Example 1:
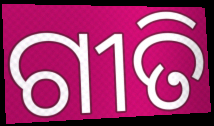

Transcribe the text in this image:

ଗୀତି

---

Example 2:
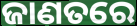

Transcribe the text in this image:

ଜାଣତରେ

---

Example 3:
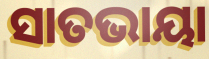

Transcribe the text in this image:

ସାତଭାୟା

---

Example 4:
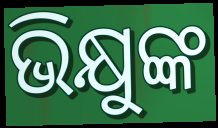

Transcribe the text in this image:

ଭିକ୍ଷୁଙ୍କ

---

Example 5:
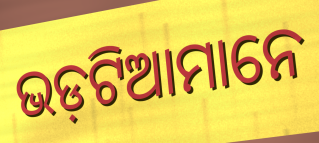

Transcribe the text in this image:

ଭଡ଼ଟିଆମାନେ